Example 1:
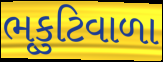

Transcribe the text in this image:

ભૃકુટિવાળા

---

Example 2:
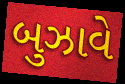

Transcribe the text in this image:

બુઝાવે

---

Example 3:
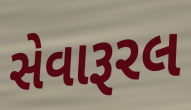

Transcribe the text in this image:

સેવારૂરલ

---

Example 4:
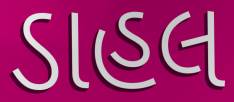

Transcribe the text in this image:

ડાહલ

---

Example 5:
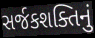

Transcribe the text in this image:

સર્જકશક્તિનું